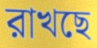
রাখছে